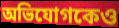
অভিযোগকেও